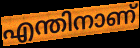
എന്തിനാണ്